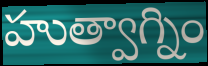
హుత్వాగ్నిం